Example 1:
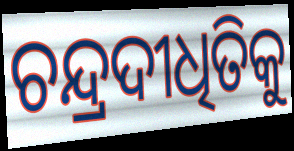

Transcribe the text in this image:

ଚନ୍ଦ୍ରଦୀଧିତିକୁ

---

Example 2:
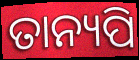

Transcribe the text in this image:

ତାନ୍ୟପି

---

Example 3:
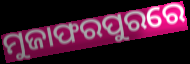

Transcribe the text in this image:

ମୁଜାଫରପୁରରେ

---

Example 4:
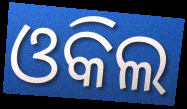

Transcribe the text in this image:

ଓକିଲ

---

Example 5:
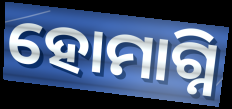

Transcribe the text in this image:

ହୋମାଗ୍ନି